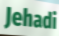
Jehadi